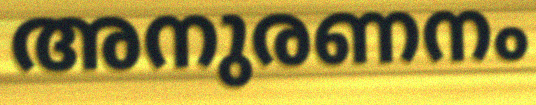
അനുരണനം